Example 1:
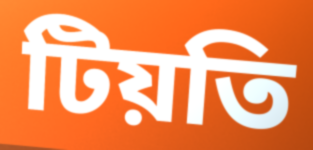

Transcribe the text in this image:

টিয়তি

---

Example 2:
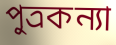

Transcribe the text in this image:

পুত্রকন্যা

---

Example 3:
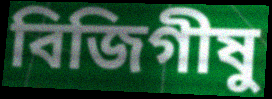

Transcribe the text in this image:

বিজিগীষু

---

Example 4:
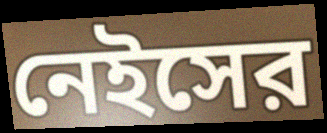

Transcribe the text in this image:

নেইসের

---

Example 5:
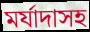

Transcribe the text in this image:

মর্যাদাসহ